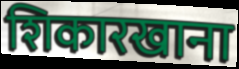
शिकारखाना